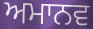
ਅਮਾਨਵ